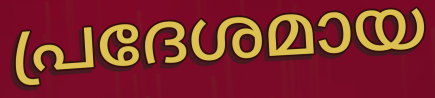
പ്രദേശമായ